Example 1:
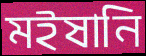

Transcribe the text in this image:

মইষানি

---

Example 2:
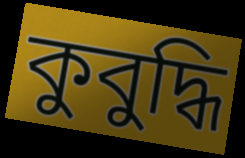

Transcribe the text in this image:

কুবুদ্ধি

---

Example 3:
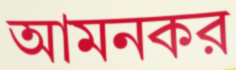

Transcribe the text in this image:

আমনকর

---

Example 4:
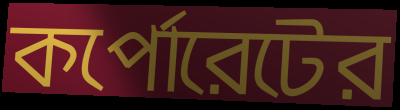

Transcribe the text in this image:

কর্পোরেটের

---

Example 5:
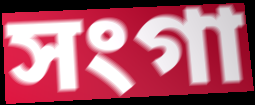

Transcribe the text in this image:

সংগা